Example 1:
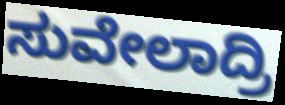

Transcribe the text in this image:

ಸುವೇಲಾದ್ರಿ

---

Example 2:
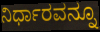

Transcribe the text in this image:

ನಿರ್ಧಾರವನ್ನೂ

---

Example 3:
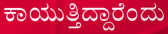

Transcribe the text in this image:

ಕಾಯುತ್ತಿದ್ದಾರೆಂದು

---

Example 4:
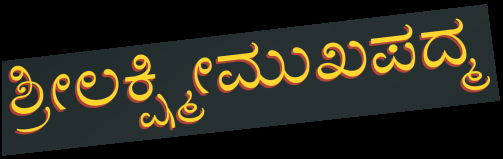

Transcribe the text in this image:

ಶ್ರೀಲಕ್ಷ್ಮೀಮುಖಪದ್ಮ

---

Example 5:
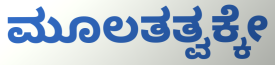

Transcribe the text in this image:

ಮೂಲತತ್ವಕ್ಕೇ